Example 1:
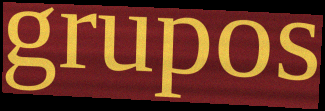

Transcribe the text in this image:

grupos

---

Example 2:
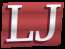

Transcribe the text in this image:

LJ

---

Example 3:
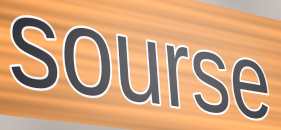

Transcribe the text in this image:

sourse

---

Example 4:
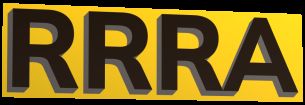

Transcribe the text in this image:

RRRA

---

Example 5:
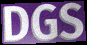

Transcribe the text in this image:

DGS